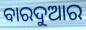
ବାରଦୁଆର